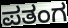
ಪತಂಗ